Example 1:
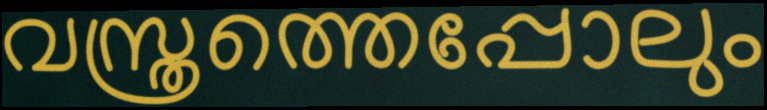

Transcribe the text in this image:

വസ്ത്രത്തെപ്പോലും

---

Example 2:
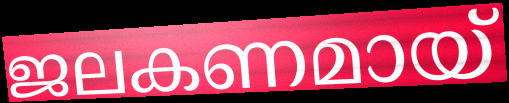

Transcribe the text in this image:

ജലകണമായ്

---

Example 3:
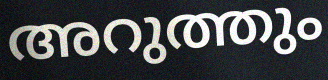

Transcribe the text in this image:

അറുത്തും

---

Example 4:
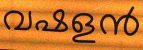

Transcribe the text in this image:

വഷളൻ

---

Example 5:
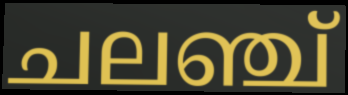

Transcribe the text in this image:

ചലഞ്ച്